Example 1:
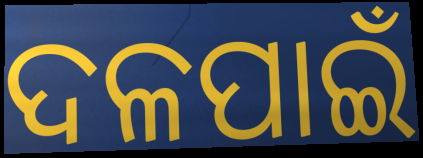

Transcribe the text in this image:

ଦଳପାଇଁ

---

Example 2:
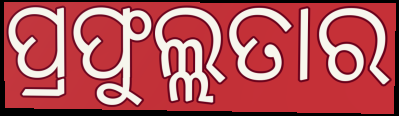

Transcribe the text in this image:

ପ୍ରଫୁଲ୍ଲତାର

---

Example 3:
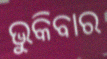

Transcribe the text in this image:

ଭୁକିବାର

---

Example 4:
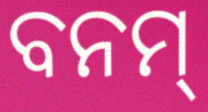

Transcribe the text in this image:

ବନମ୍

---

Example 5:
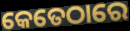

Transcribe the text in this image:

କେତେଠାରେ